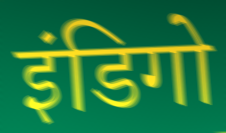
इंडिगो